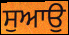
ਸੁਆਉ